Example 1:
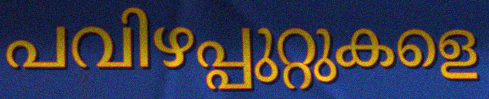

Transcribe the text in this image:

പവിഴപ്പുറ്റുകളെ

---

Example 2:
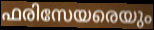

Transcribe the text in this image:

ഫരിസേയരെയും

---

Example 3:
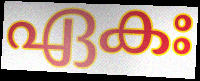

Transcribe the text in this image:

ഏകഃ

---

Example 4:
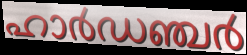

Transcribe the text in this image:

ഹാർഡഞ്ചർ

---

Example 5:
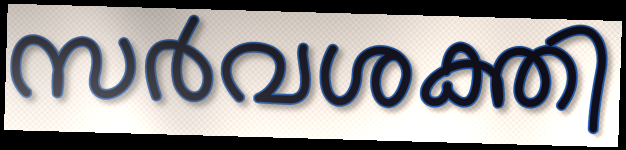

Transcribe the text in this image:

സർവശക്തി